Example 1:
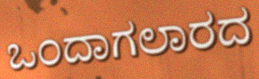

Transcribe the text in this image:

ಒಂದಾಗಲಾರದ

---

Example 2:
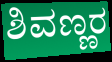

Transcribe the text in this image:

ಶಿವಣ್ಣರ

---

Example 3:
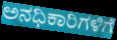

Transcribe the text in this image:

ಅನಧಿಕಾರಿಗಳಿಗೆ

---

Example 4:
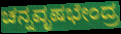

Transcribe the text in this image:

ಚನ್ನವೃಷಭೇಂದ್ರ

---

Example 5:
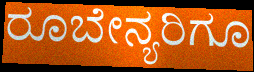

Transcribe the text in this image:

ರೂಬೇನ್ಯರಿಗೂ